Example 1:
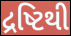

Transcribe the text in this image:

દ્રષ્ટિથી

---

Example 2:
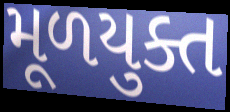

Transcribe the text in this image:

મૂળયુક્ત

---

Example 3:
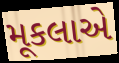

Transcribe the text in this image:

મૂકલાએ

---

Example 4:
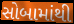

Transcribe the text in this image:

સોબામાંથી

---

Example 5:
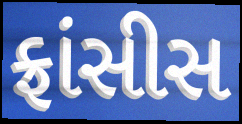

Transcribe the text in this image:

ફ્રાંસીસ